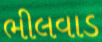
ભીલવાડ